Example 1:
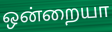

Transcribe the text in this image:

ஒன்றையா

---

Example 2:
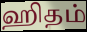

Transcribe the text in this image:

ஹிதம்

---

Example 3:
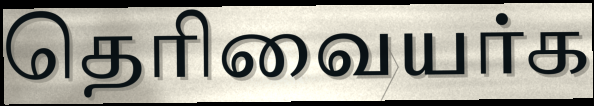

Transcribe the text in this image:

தெரிவையர்க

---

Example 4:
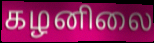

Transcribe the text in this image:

கழனிலை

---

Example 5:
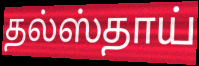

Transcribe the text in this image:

தல்ஸ்தாய்